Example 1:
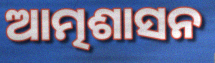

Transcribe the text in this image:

ଆତ୍ମଶାସନ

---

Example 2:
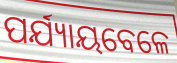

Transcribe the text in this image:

ପର୍ଯ୍ୟାୟବେଳେ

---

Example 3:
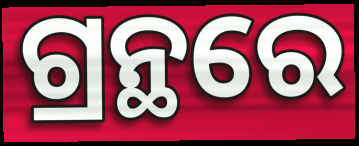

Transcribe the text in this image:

ଗ୍ରନ୍ଥରେ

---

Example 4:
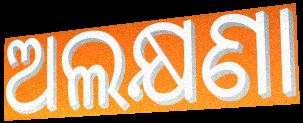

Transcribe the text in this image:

ଅଲକ୍ଷଣା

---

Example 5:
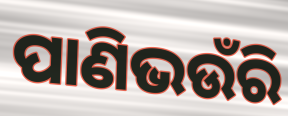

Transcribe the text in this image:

ପାଣିଭଉଁରି